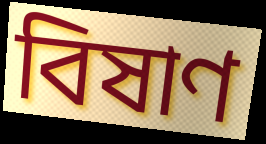
বিষাণ